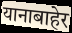
यानाबाहेर